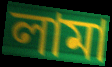
লামা